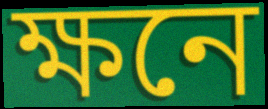
ক্ষনে